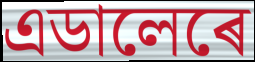
এডালেৰে